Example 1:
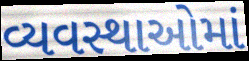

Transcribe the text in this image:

વ્યવસ્થાઓમાં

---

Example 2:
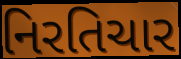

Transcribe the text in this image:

નિરતિચાર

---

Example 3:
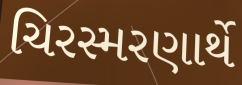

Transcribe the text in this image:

ચિરસ્મરણાર્થે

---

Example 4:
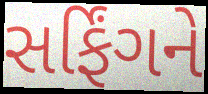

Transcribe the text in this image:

સર્ફિંગને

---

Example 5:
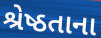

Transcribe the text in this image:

શ્રેષ્ઠતાના